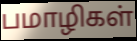
பமாழிகள்